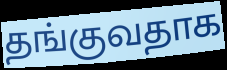
தங்குவதாக